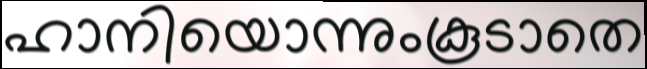
ഹാനിയൊന്നുംകൂടാതെ